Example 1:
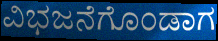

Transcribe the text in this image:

ವಿಭಜನೆಗೊಂಡಾಗ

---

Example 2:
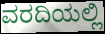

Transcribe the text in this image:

ವರದಿಯಲ್ಲಿ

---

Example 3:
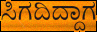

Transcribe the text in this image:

ಸಿಗದಿದ್ದಾಗ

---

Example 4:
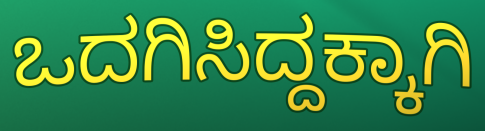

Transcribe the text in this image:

ಒದಗಿಸಿದ್ದಕ್ಕಾಗಿ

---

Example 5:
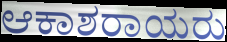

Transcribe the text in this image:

ಆಕಾಶರಾಯರು